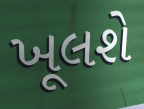
ખૂલશે